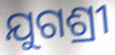
ଯୁଗଶ୍ରୀ